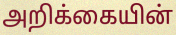
அறிக்கையின்